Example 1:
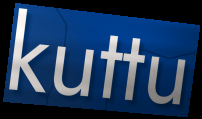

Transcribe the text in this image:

kuttu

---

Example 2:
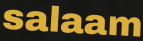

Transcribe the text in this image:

salaam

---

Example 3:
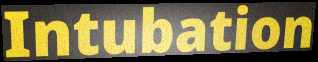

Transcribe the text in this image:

Intubation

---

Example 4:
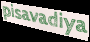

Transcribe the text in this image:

pisavadiya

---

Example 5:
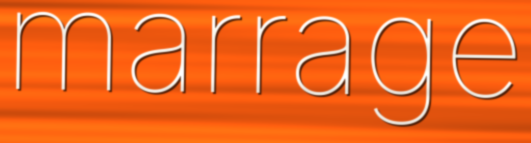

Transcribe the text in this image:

marrage